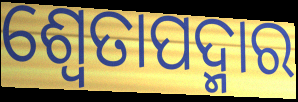
ଶ୍ଵେତାପଦ୍ମାର